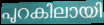
പുറകിലായി